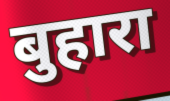
बुहारा